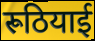
रूठियाई